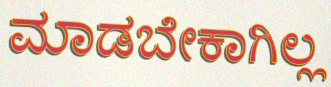
ಮಾಡಬೇಕಾಗಿಲ್ಲ